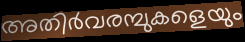
അതിർവരമ്പുകളെയും